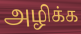
அழிக்க